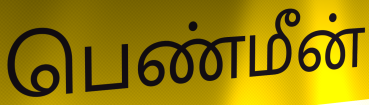
பெண்மீன்